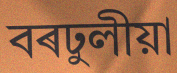
বৰঢুলীয়া